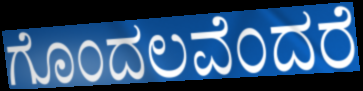
ಗೊಂದಲವೆಂದರೆ